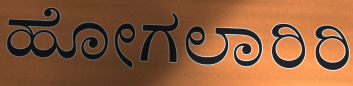
ಹೋಗಲಾರಿರಿ